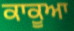
ਕਾਕੂਆ